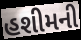
હશીમની